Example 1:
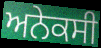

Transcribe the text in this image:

ਅਨੇਕਸੀ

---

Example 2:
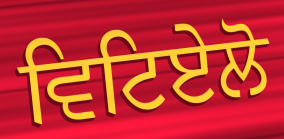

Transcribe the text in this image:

ਵਿਟਿਏਲੋ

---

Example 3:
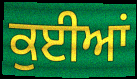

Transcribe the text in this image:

ਕੁਈਆਂ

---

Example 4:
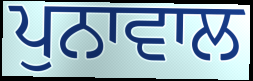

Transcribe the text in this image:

ਪੁਨਾਵਾਲ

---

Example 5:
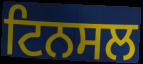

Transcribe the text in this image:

ਟਿਨਸਲ